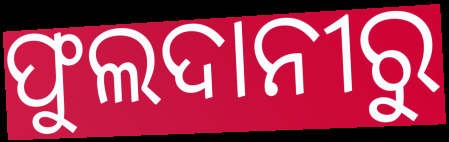
ଫୁଲଦାନୀରୁ